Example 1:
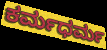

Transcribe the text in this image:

ಕರ್ಮಧರ್ಮ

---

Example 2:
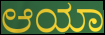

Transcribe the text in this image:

ಆಯಾ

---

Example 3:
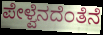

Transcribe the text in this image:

ಪೇಳ್ವೆನದೆಂತೆನೆ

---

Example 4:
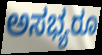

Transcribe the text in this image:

ಅಸಭ್ಯರೂ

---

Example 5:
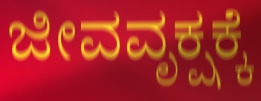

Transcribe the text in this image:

ಜೀವವೃಕ್ಷಕ್ಕೆ